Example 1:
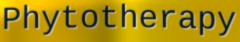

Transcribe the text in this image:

Phytotherapy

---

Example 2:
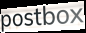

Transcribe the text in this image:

postbox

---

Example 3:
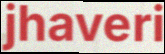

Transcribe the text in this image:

jhaveri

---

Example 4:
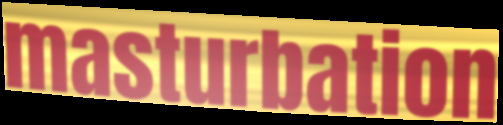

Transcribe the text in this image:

masturbation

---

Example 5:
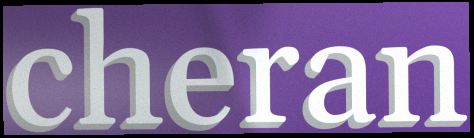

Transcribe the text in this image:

cheran